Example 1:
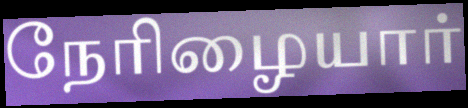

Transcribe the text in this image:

நேரிழையார்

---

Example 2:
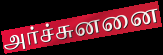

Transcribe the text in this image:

அர்ச்சுனனை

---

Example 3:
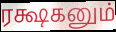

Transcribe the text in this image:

ரக்ஷகனும்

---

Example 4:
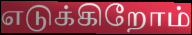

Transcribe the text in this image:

எடுக்கிறோம்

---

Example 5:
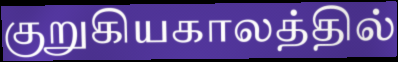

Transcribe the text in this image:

குறுகியகாலத்தில்